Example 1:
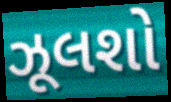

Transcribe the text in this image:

ઝૂલશો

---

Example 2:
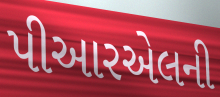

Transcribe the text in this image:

પીઆરએલની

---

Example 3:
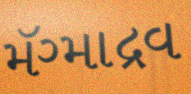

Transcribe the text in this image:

મૅગ્માદ્રવ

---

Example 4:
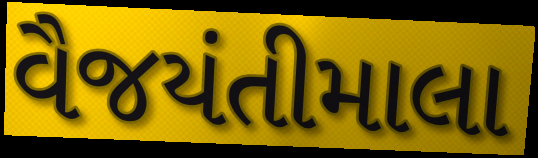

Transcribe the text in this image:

વૈજયંતીમાલા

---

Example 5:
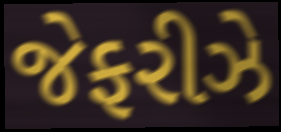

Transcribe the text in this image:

જેફરીઝે